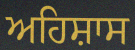
ਅਹਿਸ਼ਾਸ